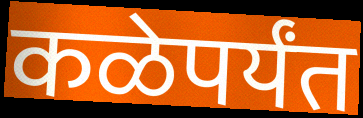
कळेपर्यंत